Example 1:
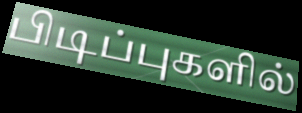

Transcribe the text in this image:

பிடிப்புகளில்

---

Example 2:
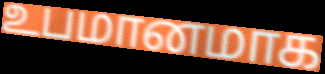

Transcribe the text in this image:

உபமானமாக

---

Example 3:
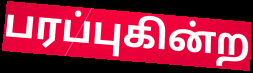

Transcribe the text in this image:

பரப்புகின்ற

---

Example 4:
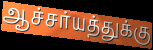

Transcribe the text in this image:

ஆச்சர்யத்துக்கு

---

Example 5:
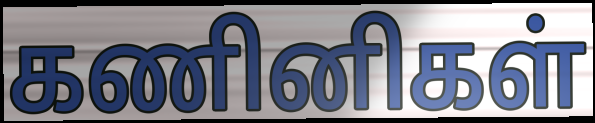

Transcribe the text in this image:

கணினிகள்